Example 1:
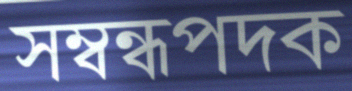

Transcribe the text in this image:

সম্বন্ধপদক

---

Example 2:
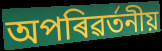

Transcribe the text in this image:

অপৰিৱৰ্তনীয়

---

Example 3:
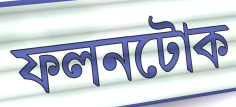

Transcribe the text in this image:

ফলনটোক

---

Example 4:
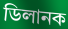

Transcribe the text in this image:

ডিলানক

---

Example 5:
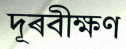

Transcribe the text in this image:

দূৰবীক্ষণ